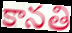
కానతి